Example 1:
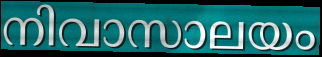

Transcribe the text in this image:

നിവാസാലയം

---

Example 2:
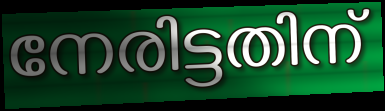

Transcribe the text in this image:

നേരിട്ടതിന്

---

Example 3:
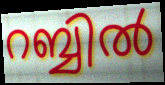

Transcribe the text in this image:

റബ്ബിൽ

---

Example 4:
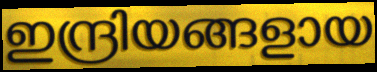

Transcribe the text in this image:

ഇന്ദ്രിയങ്ങളായ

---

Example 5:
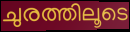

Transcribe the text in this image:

ചുരത്തിലൂടെ